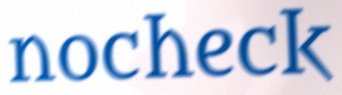
nocheck